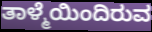
ತಾಳ್ಮೆಯಿಂದಿರುವ